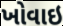
ખોવાઇ